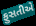
ફુસતીએ